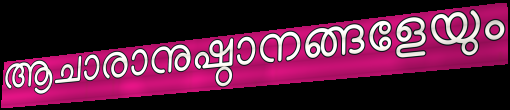
ആചാരാനുഷ്ഠാനങ്ങളേയും